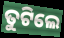
ତୁଟିଲେ